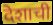
देशाची